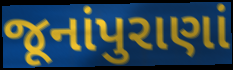
જૂનાંપુરાણાં